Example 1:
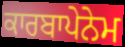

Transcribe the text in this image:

ਕਾਰਬਾਪੇਨੇਮ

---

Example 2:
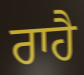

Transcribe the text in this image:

ਰਾਹੈ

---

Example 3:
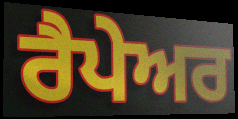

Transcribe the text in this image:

ਰੈਪੇਅਰ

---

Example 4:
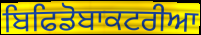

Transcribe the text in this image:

ਬਿਫਿਡੋਬਾਕਟਰੀਆ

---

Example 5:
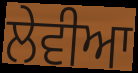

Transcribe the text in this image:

ਲੇਵੀਆ